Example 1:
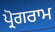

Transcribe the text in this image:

ਪ੍ਰੋਗਰਾਮ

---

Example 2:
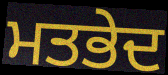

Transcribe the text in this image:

ਮਤਭੇਦ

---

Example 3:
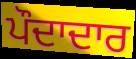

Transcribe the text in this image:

ਪੌਦਾਦਾਰ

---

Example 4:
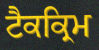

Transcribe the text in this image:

ਟੈਕਕ੍ਰਿਮ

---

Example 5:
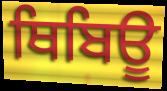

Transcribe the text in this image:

ਥਿਬਿਊ